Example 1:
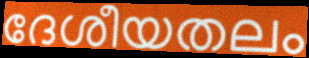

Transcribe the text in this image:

ദേശീയതലം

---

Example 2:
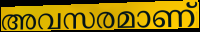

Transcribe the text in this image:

അവസരമാണ്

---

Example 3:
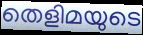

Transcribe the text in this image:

തെളിമയുടെ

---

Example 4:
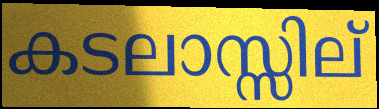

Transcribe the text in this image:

കടലാസ്സില്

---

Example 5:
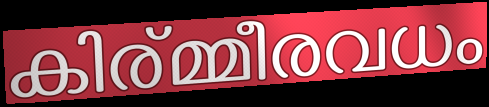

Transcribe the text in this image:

കിര്മ്മീരവധം